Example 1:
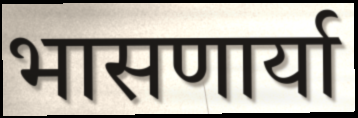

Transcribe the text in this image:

भासणार्या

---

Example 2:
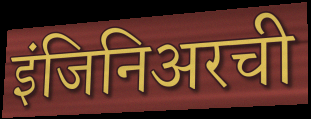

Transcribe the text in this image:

इंजिनिअरची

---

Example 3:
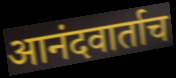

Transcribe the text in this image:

आनंदवार्ताच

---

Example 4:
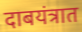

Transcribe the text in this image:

दाबयंत्रात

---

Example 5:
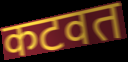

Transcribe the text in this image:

कटवत